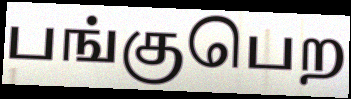
பங்குபெற